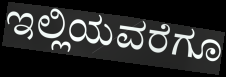
ಇಲ್ಲಿಯವರೆಗೂ